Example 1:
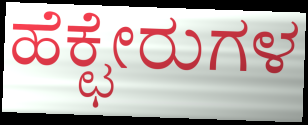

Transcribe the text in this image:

ಹೆಕ್ಟೇರುಗಳ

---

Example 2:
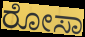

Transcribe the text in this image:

ರೋಸಾ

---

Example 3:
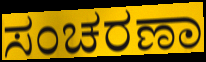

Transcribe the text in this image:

ಸಂಚರಣಾ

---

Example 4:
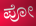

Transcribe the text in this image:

ಪೋ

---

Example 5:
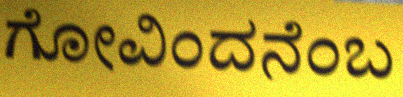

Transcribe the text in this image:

ಗೋವಿಂದನೆಂಬ